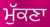
ਮੁੱਕਣਾ